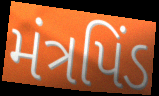
મંત્રપિંડ